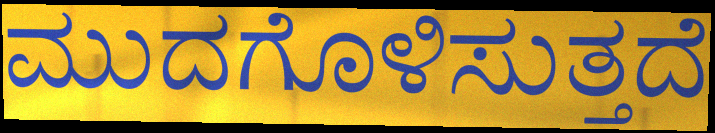
ಮುದಗೊಳಿಸುತ್ತದೆ